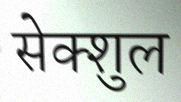
सेक्शुल